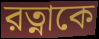
রত্নাকে